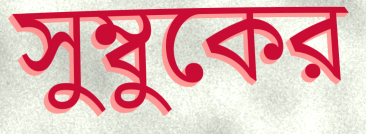
সুম্বুকের